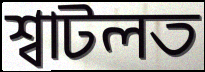
শ্বাটলত